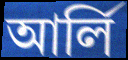
আর্লি